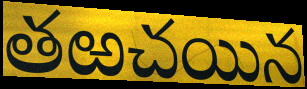
తఱచయిన